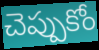
చెప్పుకోం